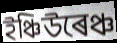
ইঞ্চিউৰেঞ্চ